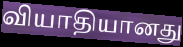
வியாதியானது